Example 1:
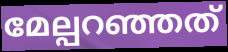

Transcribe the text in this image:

മേല്പറഞ്ഞത്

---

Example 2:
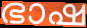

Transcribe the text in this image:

ഭാഷ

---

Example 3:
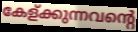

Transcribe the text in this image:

കേള്ക്കുന്നവന്റെ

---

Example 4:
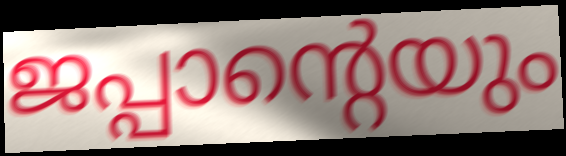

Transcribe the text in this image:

ജപ്പാന്റെയും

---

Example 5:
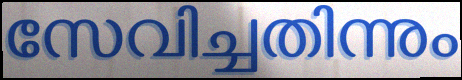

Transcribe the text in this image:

സേവിച്ചതിന്നും